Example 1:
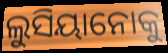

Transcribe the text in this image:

ଲୁସିୟାନୋକୁ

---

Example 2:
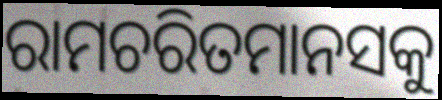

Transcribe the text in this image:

ରାମଚରିତମାନସକୁ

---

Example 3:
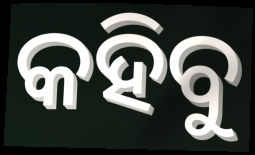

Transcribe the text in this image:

କହିବୁ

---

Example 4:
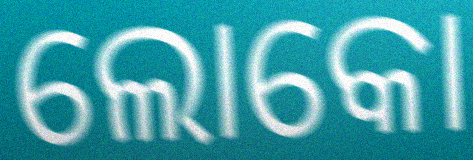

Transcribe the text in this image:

ଲୋକୋ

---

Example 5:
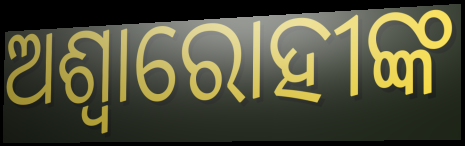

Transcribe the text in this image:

ଅଶ୍ୱାରୋହୀଙ୍କ